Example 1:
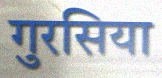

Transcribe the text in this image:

गुरसिया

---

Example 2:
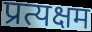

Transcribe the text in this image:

प्रत्यक्षम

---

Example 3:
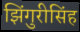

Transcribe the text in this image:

झिंगुरीसिंह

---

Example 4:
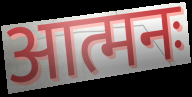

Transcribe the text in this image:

आत्मनः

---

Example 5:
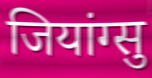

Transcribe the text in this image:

जियांग्सु